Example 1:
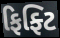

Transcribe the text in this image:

ફિફ્ટિ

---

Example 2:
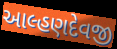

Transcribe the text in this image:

આલ્હણદેવજી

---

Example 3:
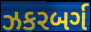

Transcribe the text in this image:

ઝકરબર્ગ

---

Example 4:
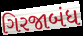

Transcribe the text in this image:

ગિરજાબંધ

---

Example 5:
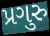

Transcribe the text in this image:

પ્રગુરુ